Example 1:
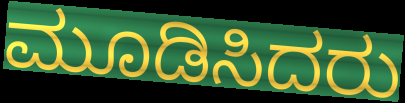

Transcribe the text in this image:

ಮೂಡಿಸಿದರು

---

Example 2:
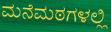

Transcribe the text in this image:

ಮನೆಮಠಗಳಲ್ಲಿ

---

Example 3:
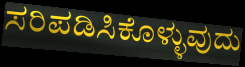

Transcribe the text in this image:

ಸರಿಪಡಿಸಿಕೊಳ್ಳುವುದು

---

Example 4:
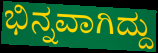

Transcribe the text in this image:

ಭಿನ್ನವಾಗಿದ್ದು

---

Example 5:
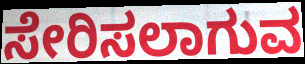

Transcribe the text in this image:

ಸೇರಿಸಲಾಗುವ